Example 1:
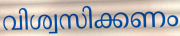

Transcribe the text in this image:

വിശ്വസിക്കണം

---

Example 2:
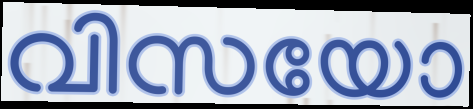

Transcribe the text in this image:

വിസയോ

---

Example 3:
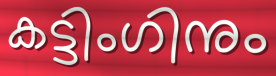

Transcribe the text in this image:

കട്ടിംഗിനും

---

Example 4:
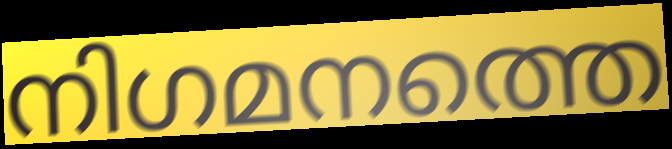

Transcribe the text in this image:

നിഗമനത്തെ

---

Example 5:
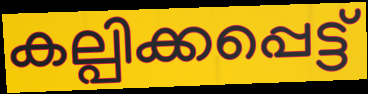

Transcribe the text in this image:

കല്പിക്കപ്പെട്ട്